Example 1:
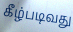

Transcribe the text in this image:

கீழ்படிவது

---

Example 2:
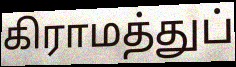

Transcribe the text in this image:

கிராமத்துப்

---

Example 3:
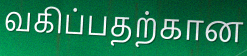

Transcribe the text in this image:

வகிப்பதற்கான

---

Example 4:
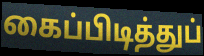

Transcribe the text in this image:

கைப்பிடித்துப்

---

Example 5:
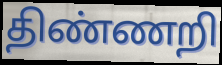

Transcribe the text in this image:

திண்ணறி